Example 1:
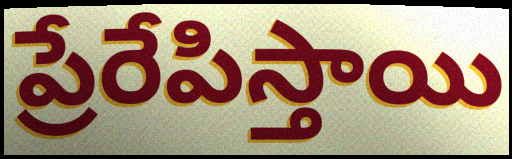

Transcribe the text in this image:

ప్రేరేపిస్తాయి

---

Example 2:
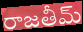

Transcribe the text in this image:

రాజతీమ్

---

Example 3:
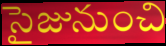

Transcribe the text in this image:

సైజునుంచి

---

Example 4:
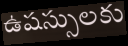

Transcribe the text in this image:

ఉషస్సులకు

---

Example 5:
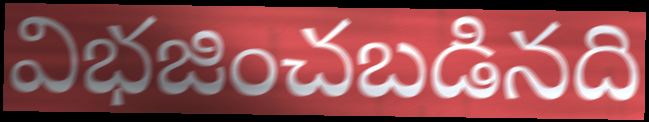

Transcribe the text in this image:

విభజించబడినది